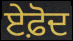
ਏਫ਼ੋਦ